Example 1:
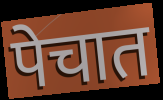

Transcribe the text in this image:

पेचात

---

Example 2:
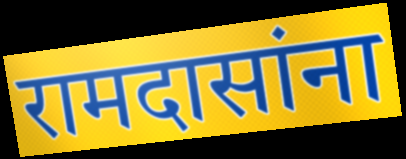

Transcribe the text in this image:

रामदासांना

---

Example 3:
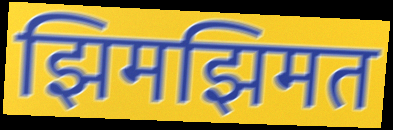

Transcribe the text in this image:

झिमझिमत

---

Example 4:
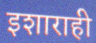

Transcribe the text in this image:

इशाराही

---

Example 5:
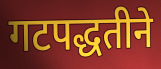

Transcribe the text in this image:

गटपद्धतीने